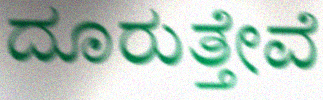
ದೂರುತ್ತೇವೆ